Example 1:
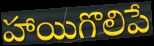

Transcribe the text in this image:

హాయిగొలిపే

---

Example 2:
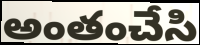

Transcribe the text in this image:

అంతంచేసి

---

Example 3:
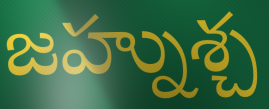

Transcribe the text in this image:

జహ్నుశ్చ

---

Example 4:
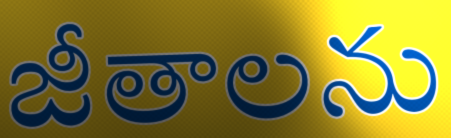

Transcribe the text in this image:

జీతాలను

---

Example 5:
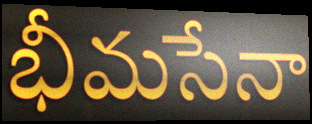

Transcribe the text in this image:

భీమసేనా